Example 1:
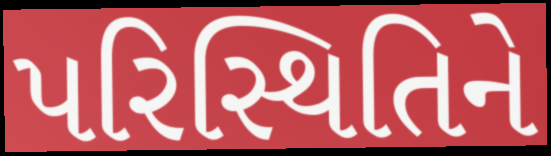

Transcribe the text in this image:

પરિસ્થિતિને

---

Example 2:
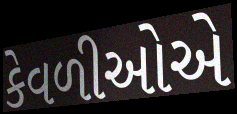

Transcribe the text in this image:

કેવળીઓએ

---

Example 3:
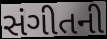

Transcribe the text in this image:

સંગીતની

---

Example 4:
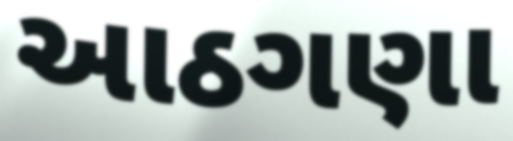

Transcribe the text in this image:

આઠગણા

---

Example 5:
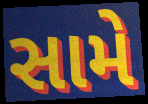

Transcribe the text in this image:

સામે